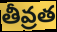
తీవ్రత